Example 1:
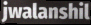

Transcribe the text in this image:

jwalanshil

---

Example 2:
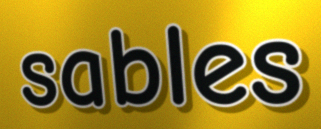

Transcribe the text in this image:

sables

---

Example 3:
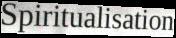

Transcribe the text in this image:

Spiritualisation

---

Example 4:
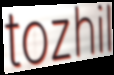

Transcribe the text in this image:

tozhil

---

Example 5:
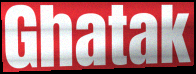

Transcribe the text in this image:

Ghatak